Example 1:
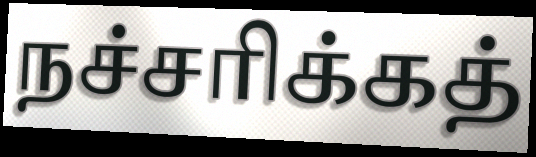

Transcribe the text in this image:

நச்சரிக்கத்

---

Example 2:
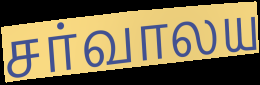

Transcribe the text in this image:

சர்வாலய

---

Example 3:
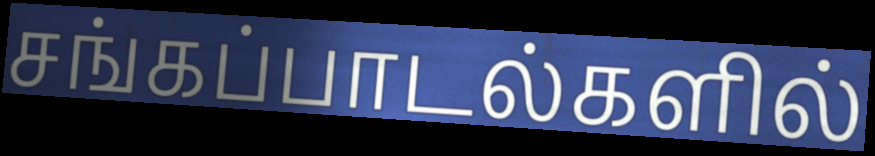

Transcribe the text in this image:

சங்கப்பாடல்களில்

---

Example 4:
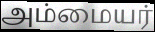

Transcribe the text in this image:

அம்மையர்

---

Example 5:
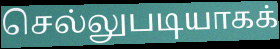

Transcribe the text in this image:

செல்லுபடியாகக்